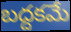
బద్దకమే